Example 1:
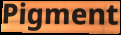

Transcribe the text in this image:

Pigment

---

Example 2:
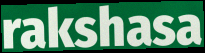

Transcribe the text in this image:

rakshasa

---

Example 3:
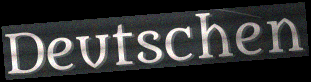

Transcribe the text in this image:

Deutschen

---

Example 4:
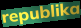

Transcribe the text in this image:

republika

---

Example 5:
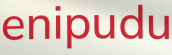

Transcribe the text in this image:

enipudu